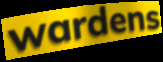
wardens